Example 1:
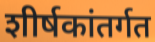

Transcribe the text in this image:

शीर्षकांतर्गत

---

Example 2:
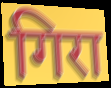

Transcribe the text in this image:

गिरा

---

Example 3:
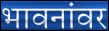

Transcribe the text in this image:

भावनांवर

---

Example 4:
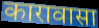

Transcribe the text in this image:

कारावासा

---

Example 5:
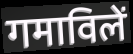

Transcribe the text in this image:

गमाविलें